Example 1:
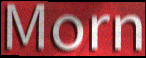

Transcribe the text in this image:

Morn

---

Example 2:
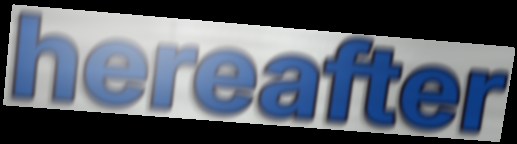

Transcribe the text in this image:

hereafter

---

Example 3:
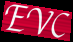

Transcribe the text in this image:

EVC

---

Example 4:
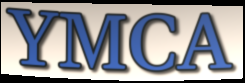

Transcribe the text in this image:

YMCA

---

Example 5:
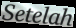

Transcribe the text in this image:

Setelah